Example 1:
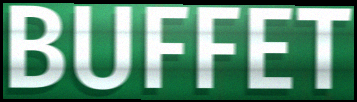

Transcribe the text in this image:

BUFFET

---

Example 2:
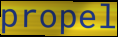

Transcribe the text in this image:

propel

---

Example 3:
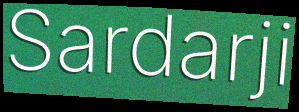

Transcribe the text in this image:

Sardarji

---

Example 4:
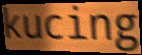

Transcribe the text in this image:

kucing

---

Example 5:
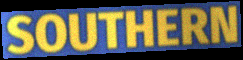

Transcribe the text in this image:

SOUTHERN